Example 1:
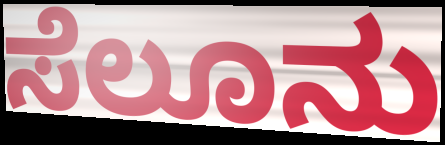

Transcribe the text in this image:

ಸೆಲೂನು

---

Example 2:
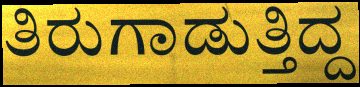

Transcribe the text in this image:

ತಿರುಗಾಡುತ್ತಿದ್ದ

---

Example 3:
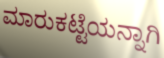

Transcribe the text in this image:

ಮಾರುಕಟ್ಟೆಯನ್ನಾಗಿ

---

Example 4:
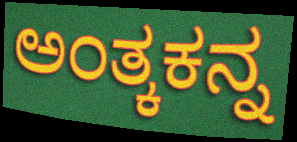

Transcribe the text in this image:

ಅಂತ್ಕಕನ್ನ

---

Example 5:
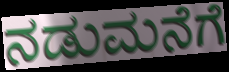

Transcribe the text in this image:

ನಡುಮನೆಗೆ